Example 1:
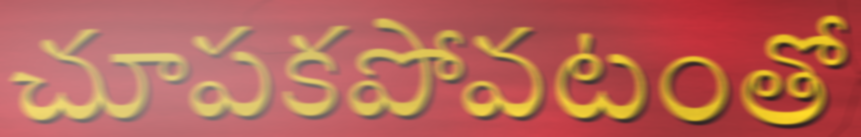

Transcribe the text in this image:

చూపకపోవటంతో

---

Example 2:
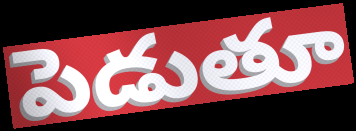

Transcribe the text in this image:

పెడుతూ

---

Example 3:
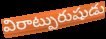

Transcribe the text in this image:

విరాట్పురుషుడు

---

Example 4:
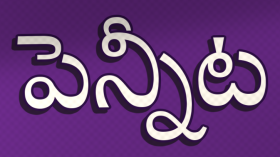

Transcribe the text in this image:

పెన్నీట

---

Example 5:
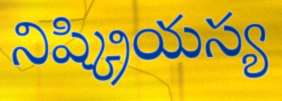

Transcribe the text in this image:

నిష్క్రియస్య